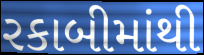
રકાબીમાંથી